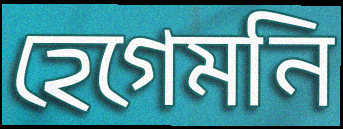
হেগেমনি